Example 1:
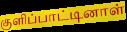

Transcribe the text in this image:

குளிப்பாட்டினாள்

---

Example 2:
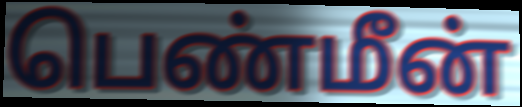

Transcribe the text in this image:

பெண்மீன்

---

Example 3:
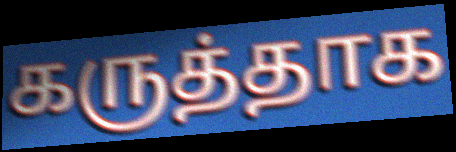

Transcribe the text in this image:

கருத்தாக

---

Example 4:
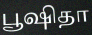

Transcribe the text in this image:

பூஷிதா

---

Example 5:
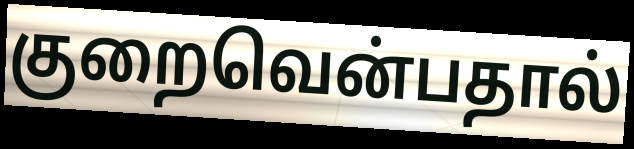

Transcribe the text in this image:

குறைவென்பதால்